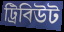
ট্রিবিউট